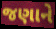
જણાને